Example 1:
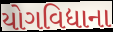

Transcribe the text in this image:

યોગવિદ્યાના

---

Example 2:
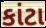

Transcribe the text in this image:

કાંટા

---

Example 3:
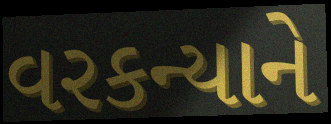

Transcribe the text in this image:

વરકન્યાને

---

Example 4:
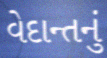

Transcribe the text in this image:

વેદાન્તનું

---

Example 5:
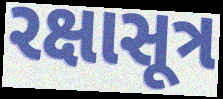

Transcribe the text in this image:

રક્ષાસૂત્ર